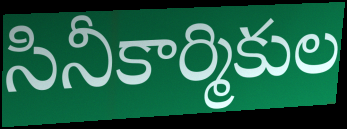
సినీకార్మికుల